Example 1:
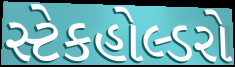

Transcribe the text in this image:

સ્ટેકહોલ્ડરો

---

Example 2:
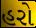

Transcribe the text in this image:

હરો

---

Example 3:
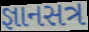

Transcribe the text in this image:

જ્ઞાનસત્ર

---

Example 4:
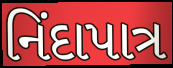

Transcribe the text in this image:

નિંદાપાત્ર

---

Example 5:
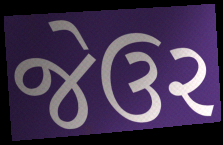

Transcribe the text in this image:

જેઉર